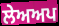
ਲੇਅਅਪ